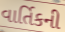
વાર્તિકની